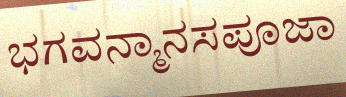
ಭಗವನ್ಮಾನಸಪೂಜಾ